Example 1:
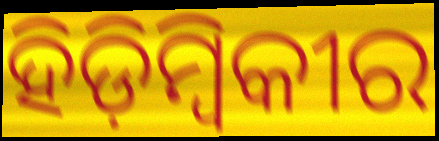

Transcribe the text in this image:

ହିଡ଼ିମ୍ବିକୀର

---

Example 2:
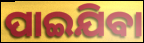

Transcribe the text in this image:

ପାଇଯିବା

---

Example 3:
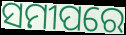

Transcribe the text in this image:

ସମୀପରେ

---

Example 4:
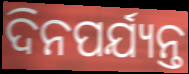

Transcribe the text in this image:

ଦିନପର୍ଯ୍ୟନ୍ତ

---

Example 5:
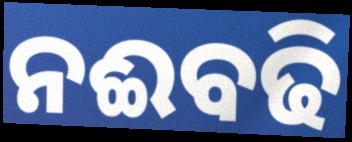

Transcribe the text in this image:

ନଈବଢି